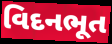
વિદનભૂત